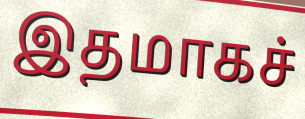
இதமாகச்